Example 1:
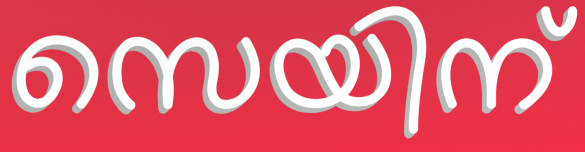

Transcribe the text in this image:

സെയിന്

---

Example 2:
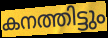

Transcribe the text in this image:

കനത്തിട്ടും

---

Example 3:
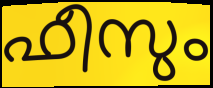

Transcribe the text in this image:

ഫീസും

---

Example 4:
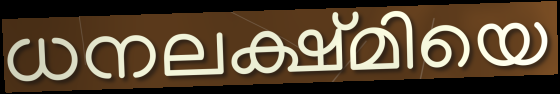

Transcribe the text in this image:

ധനലക്ഷ്മിയെ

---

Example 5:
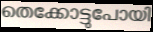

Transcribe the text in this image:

തെക്കോട്ടുപോയി